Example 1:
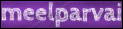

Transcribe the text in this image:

meelparvai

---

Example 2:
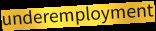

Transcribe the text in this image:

underemployment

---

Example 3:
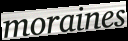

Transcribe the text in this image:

moraines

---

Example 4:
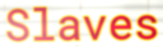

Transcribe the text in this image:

Slaves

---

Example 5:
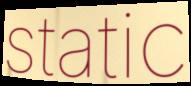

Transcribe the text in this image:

static